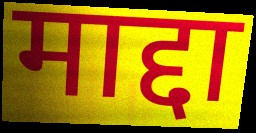
माद्दा